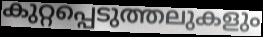
കുറ്റപ്പെടുത്തലുകളും